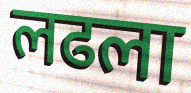
लढला